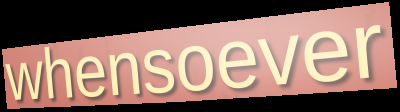
whensoever